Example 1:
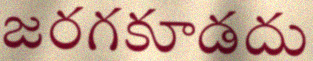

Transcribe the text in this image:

జరగకూడదు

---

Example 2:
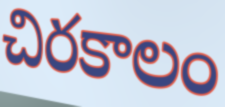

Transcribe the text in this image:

చిరకాలం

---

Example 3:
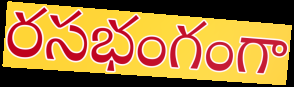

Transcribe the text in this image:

రసభంగంగా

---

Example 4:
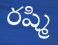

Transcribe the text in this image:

రష్మి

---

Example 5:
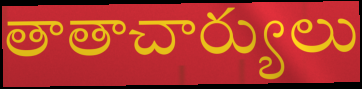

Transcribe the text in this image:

తాతాచార్యులు